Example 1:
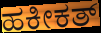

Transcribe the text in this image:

ಹಕೀಕತ್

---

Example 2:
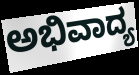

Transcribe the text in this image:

ಅಭಿವಾದ್ಯ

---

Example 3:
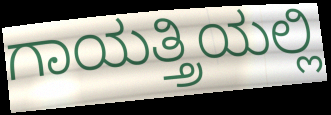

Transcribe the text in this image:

ಗಾಯತ್ತ್ರಿಯಲ್ಲಿ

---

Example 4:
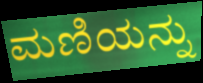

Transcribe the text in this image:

ಮಣಿಯನ್ನು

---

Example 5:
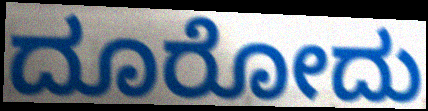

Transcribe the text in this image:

ದೂರೋದು